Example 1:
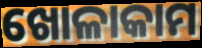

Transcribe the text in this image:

ଖୋଳାକାମ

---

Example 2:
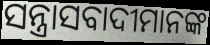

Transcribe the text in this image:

ସନ୍ତ୍ରାସବାଦୀମାନଙ୍କ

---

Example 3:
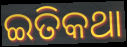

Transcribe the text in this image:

ଇତିକଥା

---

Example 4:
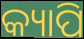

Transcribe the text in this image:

କ୍ୟାପି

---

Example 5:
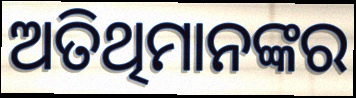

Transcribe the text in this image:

ଅତିଥିମାନଙ୍କର